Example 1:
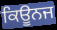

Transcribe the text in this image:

ਕਿਊਨਜ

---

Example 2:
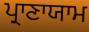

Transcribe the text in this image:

ਪ੍ਰਾਣਾਯਾਮ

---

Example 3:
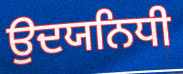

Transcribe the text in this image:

ਉਦਯਨਿਧੀ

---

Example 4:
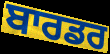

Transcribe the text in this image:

ਬਾਰਡਰ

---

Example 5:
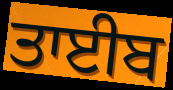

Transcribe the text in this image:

ਤਾਈਬ